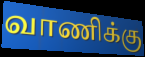
வாணிக்கு